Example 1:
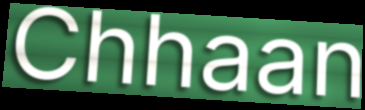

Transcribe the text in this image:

Chhaan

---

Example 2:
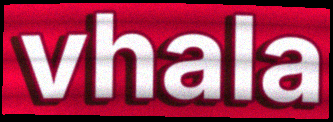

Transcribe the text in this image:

vhala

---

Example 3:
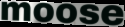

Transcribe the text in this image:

moose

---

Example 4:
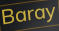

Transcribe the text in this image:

Baray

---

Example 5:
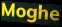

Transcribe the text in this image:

Moghe